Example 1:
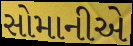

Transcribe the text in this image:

સોમાનીએ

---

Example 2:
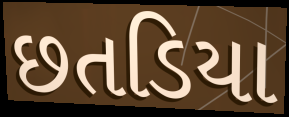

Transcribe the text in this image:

છતડિયા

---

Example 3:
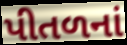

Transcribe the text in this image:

પીતળનાં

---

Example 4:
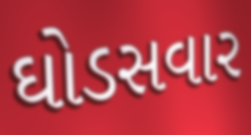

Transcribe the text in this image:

ઘોડસવાર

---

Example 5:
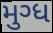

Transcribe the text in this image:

મુગ્ધ